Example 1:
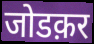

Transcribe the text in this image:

जोडक़र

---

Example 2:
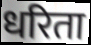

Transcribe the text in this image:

धरिता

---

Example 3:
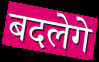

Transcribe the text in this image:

बदलेगे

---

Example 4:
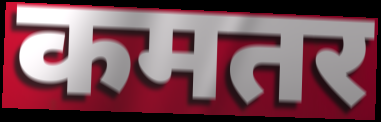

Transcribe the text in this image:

कमतर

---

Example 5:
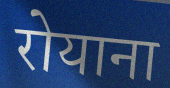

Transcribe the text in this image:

रोयाना